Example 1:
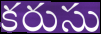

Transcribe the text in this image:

కరుసు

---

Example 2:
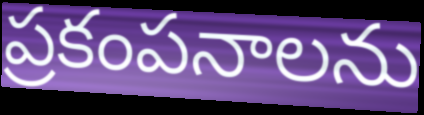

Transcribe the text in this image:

ప్రకంపనాలను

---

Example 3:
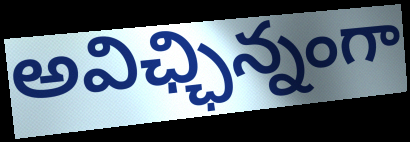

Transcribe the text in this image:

అవిఛ్ఛిన్నంగా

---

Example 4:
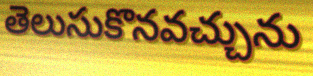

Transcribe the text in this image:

తెలుసుకొనవచ్చును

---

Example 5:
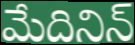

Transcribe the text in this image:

మేదినిన్